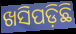
ଖସିପଡ଼ିଛି